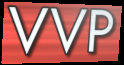
VVP